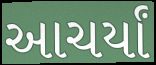
આચર્યાં